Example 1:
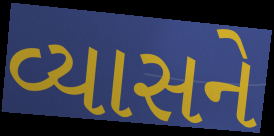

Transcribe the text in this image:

વ્યાસને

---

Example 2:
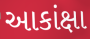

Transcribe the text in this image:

આકાંક્ષા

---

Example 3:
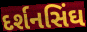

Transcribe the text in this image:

દર્શનસિંઘ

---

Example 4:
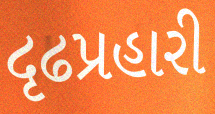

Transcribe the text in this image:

દૃઢપ્રહારી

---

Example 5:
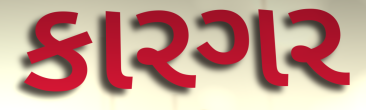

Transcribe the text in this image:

કારગર